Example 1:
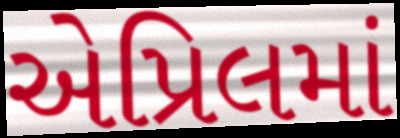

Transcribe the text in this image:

એપ્રિલમાં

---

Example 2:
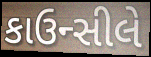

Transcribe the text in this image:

કાઉન્સીલે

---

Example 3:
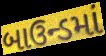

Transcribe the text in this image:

બાઉન્ડમાં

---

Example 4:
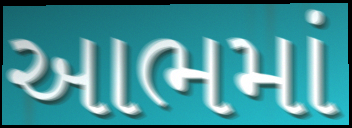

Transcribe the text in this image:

આભમાં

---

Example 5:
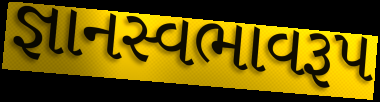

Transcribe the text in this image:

જ્ઞાનસ્વભાવરૂપ